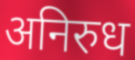
अनिरुध